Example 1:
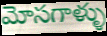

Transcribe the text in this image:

మోసగాళ్ళు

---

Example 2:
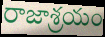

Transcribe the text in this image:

రాజాశ్రయం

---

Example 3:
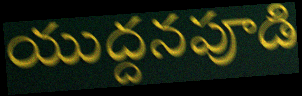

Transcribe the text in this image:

యుద్దనపూడి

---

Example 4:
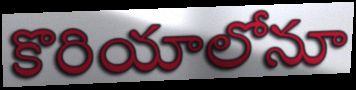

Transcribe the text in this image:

కొరియాలోనూ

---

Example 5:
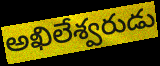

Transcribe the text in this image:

అఖిలేశ్వరుడు